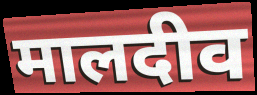
मालदीव